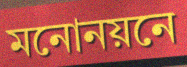
মনোনয়নে